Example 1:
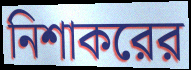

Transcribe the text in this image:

নিশাকরের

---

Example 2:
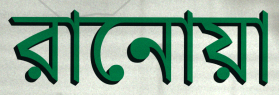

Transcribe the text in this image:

রানোয়া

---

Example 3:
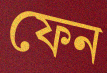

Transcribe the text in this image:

ফেন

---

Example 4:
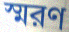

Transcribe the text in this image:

স্মরণ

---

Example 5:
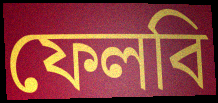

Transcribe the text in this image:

ফেলবি